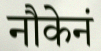
नौकेनं